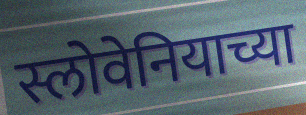
स्लोवेनियाच्या